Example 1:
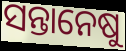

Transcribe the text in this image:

ସନ୍ତାନେଷୁ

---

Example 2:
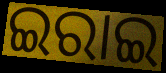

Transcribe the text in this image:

ଇରାଇ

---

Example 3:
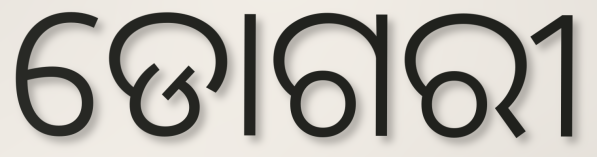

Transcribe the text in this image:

ଡୋଗରୀ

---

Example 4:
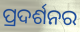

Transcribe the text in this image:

ପ୍ରଦର୍ଶନର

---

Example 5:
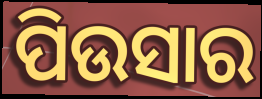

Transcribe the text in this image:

ପିଉସାର